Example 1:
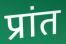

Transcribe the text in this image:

प्रांत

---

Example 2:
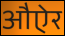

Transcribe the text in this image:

औऐर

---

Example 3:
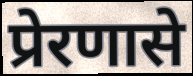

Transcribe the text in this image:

प्रेरणासे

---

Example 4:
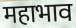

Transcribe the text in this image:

महाभाव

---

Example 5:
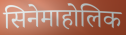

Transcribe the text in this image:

सिनेमाहोलिक